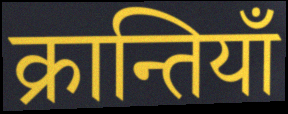
क्रान्तियाँ